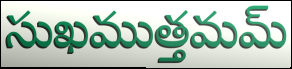
సుఖముత్తమమ్